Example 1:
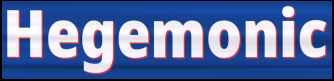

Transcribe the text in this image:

Hegemonic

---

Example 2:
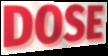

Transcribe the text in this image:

DOSE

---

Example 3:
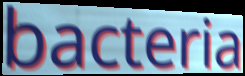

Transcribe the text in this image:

bacteria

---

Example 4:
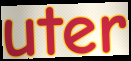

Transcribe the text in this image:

uter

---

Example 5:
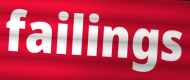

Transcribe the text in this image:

failings